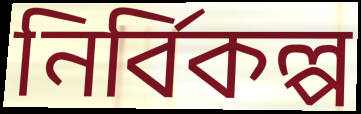
নির্বিকল্প